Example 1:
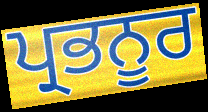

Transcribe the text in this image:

ਪ੍ਰਭਨੂਰ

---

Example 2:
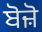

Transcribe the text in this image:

ਬੋਜ਼ੋ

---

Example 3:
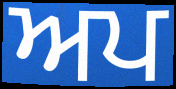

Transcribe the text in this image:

ਅਪ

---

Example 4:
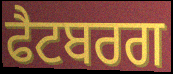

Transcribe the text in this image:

ਫੈਟਬਰਗ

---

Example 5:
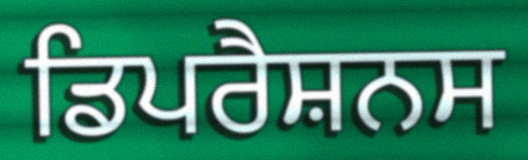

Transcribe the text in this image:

ਡਿਪਰੈਸ਼ਨਸ